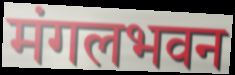
मंगलभवन